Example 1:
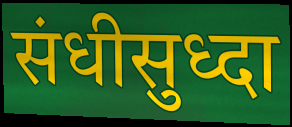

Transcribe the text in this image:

संधीसुध्दा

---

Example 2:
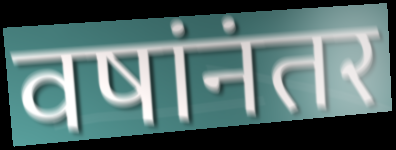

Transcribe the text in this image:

वषांनंतर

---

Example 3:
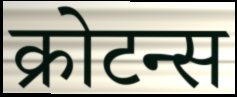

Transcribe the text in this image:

क्रोटन्स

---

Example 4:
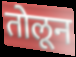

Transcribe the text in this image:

तोलून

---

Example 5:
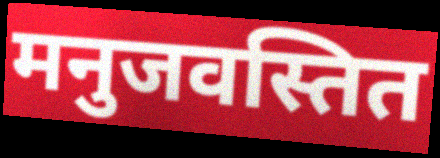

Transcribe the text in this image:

मनुजवस्तित